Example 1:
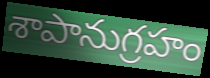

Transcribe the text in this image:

శాపానుగ్రహం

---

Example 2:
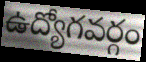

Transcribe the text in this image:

ఉద్యోగవర్గం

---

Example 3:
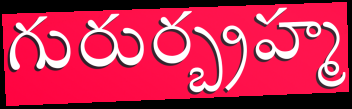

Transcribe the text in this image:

గురుర్బ్రహ్మ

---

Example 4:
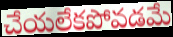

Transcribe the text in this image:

చేయలేకపోవడమే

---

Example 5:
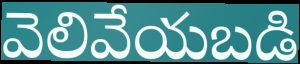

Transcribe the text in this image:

వెలివేయబడి